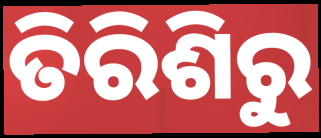
ତିରିଶିରୁ